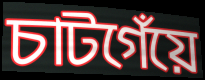
চাটগেঁয়ে